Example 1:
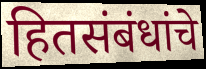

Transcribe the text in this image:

हितसंबंधांचे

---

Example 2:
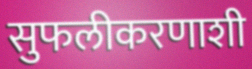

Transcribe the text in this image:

सुफलीकरणाशी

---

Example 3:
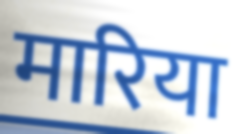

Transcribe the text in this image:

मारिया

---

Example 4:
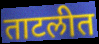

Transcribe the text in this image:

ताटलीत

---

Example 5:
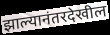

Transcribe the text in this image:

झाल्यानंतरदेखील